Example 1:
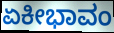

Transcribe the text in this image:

ಏಕೀಭಾವಂ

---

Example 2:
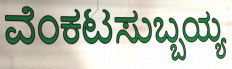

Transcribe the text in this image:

ವೆಂಕಟಸುಬ್ಬಯ್ಯ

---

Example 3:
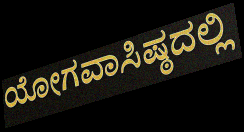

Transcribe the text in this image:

ಯೋಗವಾಸಿಷ್ಠದಲ್ಲಿ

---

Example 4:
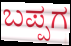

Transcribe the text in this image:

ಬಪ್ಪಗ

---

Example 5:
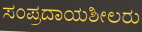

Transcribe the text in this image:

ಸಂಪ್ರದಾಯಶೀಲರು